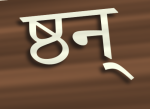
ष्ठन्